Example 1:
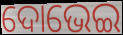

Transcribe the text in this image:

ଦୋଭେଇ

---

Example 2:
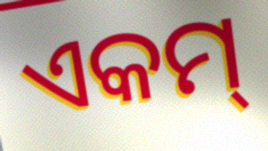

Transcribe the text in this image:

ଏକମ୍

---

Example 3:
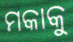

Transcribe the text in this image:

ମକାକୁ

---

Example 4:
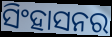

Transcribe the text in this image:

ସିଂହାସନର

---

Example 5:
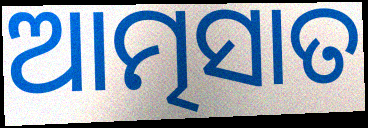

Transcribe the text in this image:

ଆତ୍ମସାତ